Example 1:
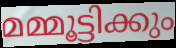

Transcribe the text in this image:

മമ്മൂട്ടിക്കും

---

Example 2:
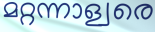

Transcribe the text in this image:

മറ്റന്നാള്വരെ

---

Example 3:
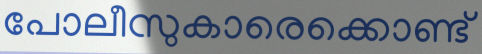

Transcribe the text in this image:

പോലീസുകാരെക്കൊണ്ട്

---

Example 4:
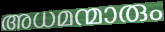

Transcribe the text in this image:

അധമന്മാരും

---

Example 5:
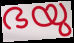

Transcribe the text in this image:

ഭയു